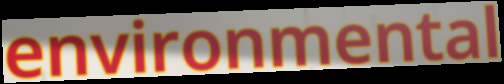
environmental